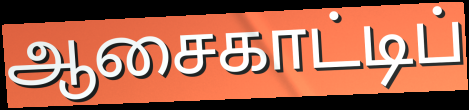
ஆசைகாட்டிப்